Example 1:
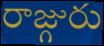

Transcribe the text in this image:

రాజ్గురు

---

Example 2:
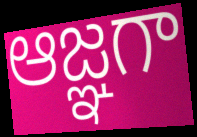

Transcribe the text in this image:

ఆజ్ఞగా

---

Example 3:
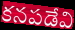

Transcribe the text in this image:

కనపడేవి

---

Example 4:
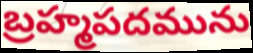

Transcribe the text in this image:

బ్రహ్మపదమును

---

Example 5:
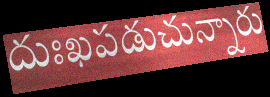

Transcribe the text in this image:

దుఃఖపడుచున్నారు